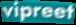
vipreet